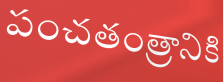
పంచతంత్రానికి